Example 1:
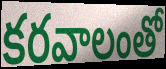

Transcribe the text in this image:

కరవాలంతో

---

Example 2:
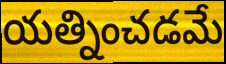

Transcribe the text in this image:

యత్నించడమే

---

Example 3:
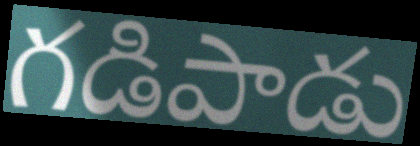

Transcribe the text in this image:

గడిపాడు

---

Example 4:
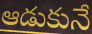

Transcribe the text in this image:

ఆడుకునే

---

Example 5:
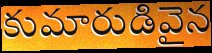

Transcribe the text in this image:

కుమారుడివైన